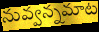
నువ్వన్నమాట